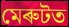
মেৰুটত